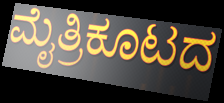
ಮೈತ್ರಿಕೂಟದ